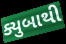
ક્યુબાથી